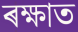
ৰক্ষাত